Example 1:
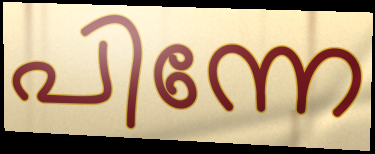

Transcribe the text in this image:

പിന്നേ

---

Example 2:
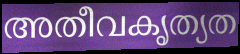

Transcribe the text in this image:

അതീവകൃത്യത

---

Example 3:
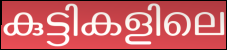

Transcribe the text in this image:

കുട്ടികളിലെ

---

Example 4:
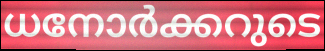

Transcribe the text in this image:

ധനോർക്കറുടെ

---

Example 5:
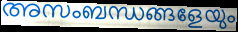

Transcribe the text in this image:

അസംബന്ധങ്ങളേയും